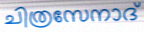
ചിത്രസേനാദ്